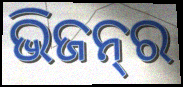
ଭିଜନ୍‌ର